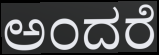
ಅಂದರೆ